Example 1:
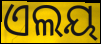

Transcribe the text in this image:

ଏଲୟ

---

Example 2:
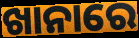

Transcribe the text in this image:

ଖାନାରେ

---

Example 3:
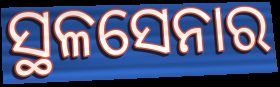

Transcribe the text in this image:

ସ୍ଥଳସେନାର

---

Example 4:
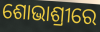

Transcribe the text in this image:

ଶୋଭାଶ୍ରୀରେ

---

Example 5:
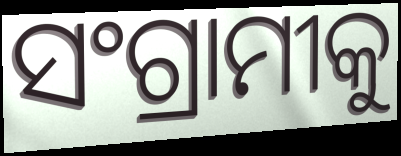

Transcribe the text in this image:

ସଂଗ୍ରାମୀକୁ